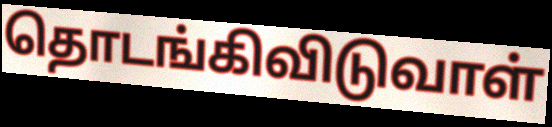
தொடங்கிவிடுவாள்